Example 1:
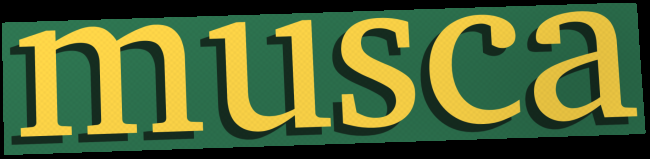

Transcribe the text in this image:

musca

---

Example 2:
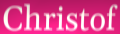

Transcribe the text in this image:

Christof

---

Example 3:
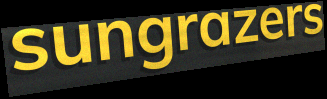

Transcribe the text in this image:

sungrazers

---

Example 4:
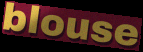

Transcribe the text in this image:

blouse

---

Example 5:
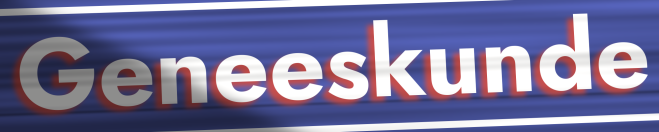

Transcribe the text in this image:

Geneeskunde